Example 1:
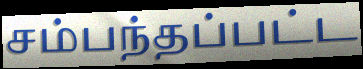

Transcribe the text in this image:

சம்பந்தப்பட்ட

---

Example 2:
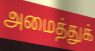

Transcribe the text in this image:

அமைத்துக்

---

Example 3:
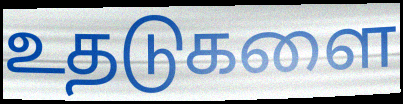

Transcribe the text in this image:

உதடுகளை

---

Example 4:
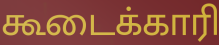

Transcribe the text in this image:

கூடைக்காரி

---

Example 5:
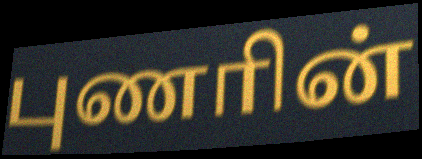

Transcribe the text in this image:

புணரின்